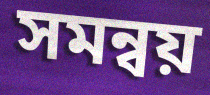
সমন্বয়